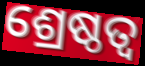
ଶ୍ରେଷ୍ଠତ୍ବ